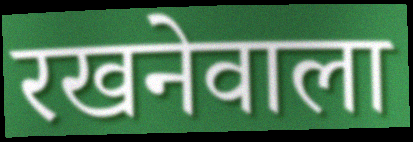
रखनेवाला